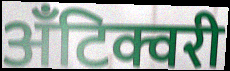
अँटिक्वरी